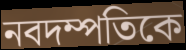
নবদম্পতিকে